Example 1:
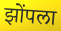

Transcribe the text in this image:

झोंपला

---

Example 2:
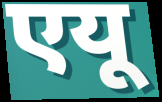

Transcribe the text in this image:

एयू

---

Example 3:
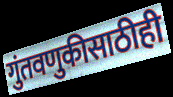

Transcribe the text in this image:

गुंतवणुकीसाठीही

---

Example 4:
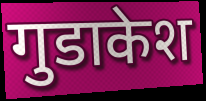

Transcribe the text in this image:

गुडाकेश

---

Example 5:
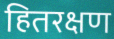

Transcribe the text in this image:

हितरक्षण